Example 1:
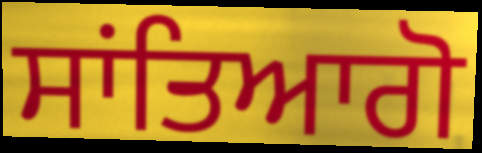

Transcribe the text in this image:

ਸਾਂਤਿਆਗੋ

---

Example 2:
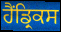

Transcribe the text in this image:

ਹੈਂਡ੍ਰਿਕਸ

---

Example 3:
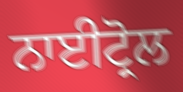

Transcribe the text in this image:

ਨਾਈਟ੍ਰੋਲ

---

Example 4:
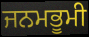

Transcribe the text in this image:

ਜਨਮਭੂਮੀ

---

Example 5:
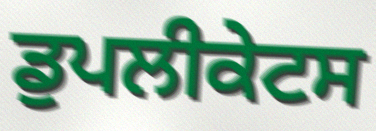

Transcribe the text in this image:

ਡੁਪਲੀਕੇਟਸ